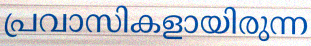
പ്രവാസികളായിരുന്ന